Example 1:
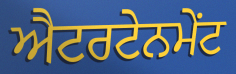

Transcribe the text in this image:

ਐਟਰਟੇਨਮੇਂਟ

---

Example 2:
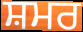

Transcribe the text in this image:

ਸ਼ਮਰ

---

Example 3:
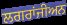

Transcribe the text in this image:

ਲਗਰਾਂਜੀਅਨ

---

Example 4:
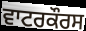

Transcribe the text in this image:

ਵਾਟਰਕੌਰਸ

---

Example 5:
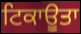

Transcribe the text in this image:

ਟਿਕਾਊਤਾ